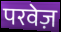
परवेज़